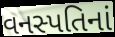
વનસ્પતિનાં